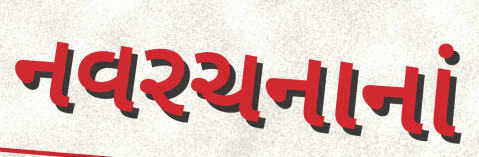
નવરચનાનાં